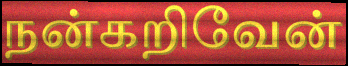
நன்கறிவேன்